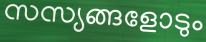
സസ്യങ്ങളോടും